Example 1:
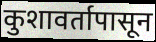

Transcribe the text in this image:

कुशावर्तापासून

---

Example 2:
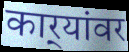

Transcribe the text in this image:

कार्यांवर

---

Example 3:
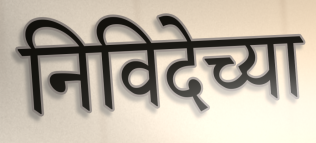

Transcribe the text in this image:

निविदेच्या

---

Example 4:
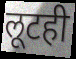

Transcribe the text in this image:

लूटही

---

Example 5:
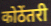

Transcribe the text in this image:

कोठेंतरी